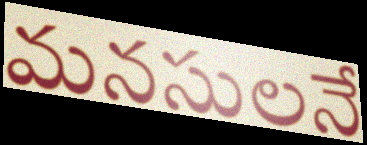
మనసులనే